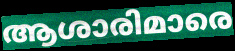
ആശാരിമാരെ